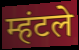
म्हंटले